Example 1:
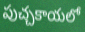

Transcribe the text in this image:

పుచ్చకాయలో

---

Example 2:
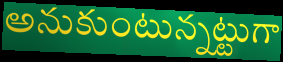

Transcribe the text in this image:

అనుకుంటున్నట్టుగా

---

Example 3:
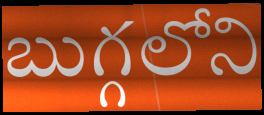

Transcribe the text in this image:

బుగ్గలోని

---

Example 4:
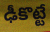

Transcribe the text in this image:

ఢీకొట్టే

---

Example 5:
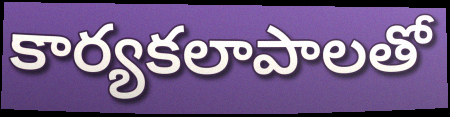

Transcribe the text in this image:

కార్యకలాపాలతో